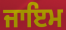
ਜਾਇਮ